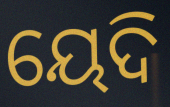
ୟେଦି